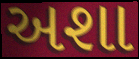
અશા